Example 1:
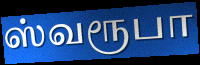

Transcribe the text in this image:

ஸ்வரூபா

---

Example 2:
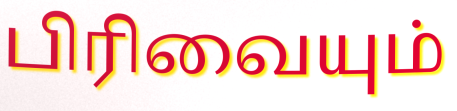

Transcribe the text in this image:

பிரிவையும்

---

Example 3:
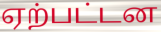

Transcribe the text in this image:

ஏற்பட்டன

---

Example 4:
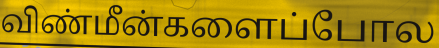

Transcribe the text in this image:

விண்மீன்களைப்போல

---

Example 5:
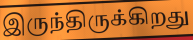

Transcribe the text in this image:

இருந்திருக்கிறது